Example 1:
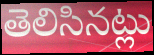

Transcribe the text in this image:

తెలిసినట్లు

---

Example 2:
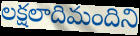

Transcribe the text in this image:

లక్షలాదిమందిని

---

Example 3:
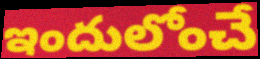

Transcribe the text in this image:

ఇందులోంచే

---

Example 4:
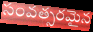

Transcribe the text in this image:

సంవత్సరమైన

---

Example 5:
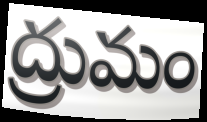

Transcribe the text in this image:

ద్రుమం